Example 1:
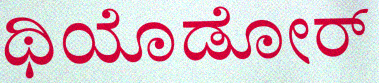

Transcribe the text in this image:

ಥಿಯೊಡೋರ್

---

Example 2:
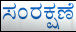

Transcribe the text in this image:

ಸಂರಕ್ಷಣೆ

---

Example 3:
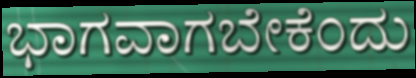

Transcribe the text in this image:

ಭಾಗವಾಗಬೇಕೆಂದು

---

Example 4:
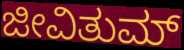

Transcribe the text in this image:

ಜೀವಿತುಮ್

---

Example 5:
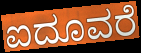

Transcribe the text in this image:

ಐದೂವರೆ